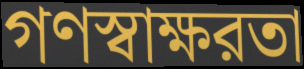
গণস্বাক্ষরতা